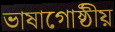
ভাষাগোষ্ঠীয়